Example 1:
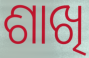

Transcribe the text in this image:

ଶାଖି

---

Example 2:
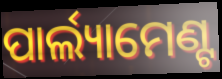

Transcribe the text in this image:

ପାର୍ଲ୍ୟାମେଣ୍ଟ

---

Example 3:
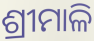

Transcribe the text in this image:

ଶ୍ରୀମାଳି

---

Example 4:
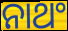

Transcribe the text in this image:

ନାଥଂ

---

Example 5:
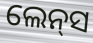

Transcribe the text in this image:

ଲେନ୍‌ସ